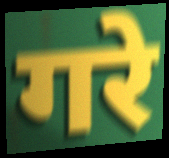
गरे